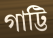
গাট্টি